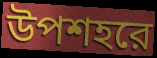
উপশহরে